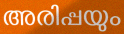
അരിപ്പയും